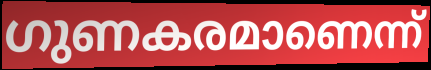
ഗുണകരമാണെന്ന്